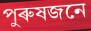
পুৰুষজনে